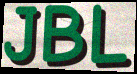
JBL